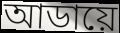
আডায়ে